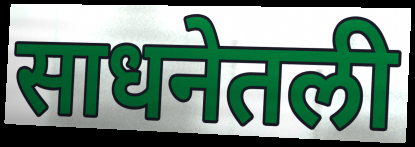
साधनेतली